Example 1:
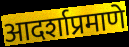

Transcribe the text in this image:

आदर्शाप्रमाणे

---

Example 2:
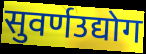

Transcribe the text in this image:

सुवर्णउद्योग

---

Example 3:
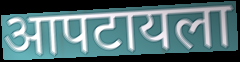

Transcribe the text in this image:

आपटायला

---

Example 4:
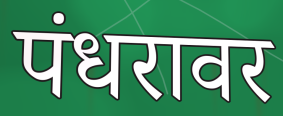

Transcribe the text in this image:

पंधरावर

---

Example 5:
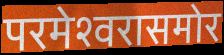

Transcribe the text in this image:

परमेश्वरासमोर